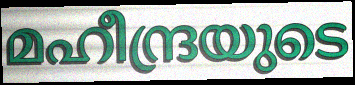
മഹീന്ദ്രയുടെ